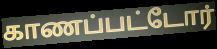
காணப்பட்டோர்